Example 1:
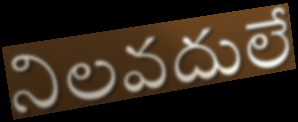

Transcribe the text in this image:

నిలవదులే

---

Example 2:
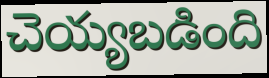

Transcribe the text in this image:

చెయ్యబడింది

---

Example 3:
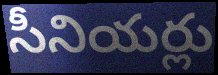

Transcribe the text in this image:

సీనియర్లు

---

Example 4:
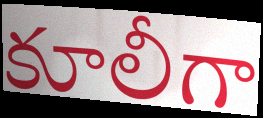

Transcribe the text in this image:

కూలీగా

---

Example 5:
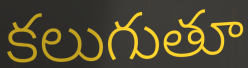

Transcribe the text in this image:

కలుగుతూ